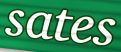
sates